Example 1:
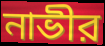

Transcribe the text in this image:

নাভীর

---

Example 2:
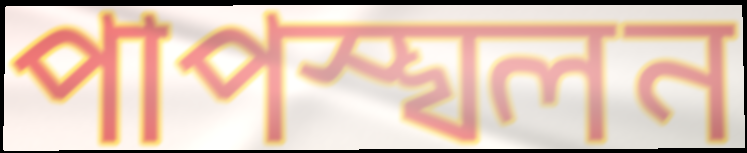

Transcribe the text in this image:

পাপস্খলন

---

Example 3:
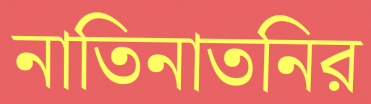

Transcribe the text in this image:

নাতিনাতনির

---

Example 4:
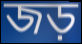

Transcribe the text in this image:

জড়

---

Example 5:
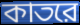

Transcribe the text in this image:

কাতরে